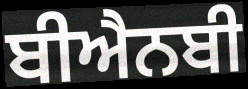
ਬੀਐਨਬੀ